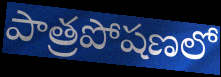
పాత్రపోషణలో